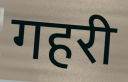
गहरी